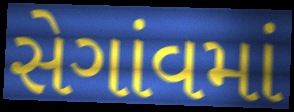
સેગાંવમાં